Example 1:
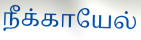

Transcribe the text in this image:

நீக்காயேல்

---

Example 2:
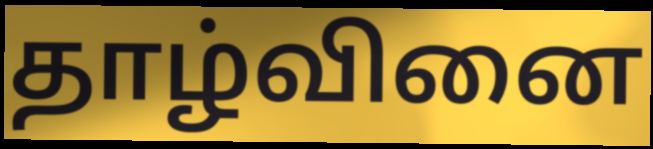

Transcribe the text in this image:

தாழ்வினை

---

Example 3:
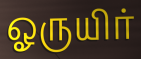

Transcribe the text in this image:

ஓருயிர்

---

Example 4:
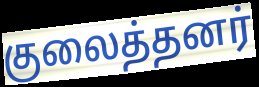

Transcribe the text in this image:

குலைத்தனர்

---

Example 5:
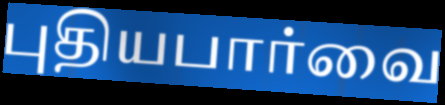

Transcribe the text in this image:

புதியபார்வை